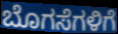
ಬೊಗಸೆಗಳಿಗೆ